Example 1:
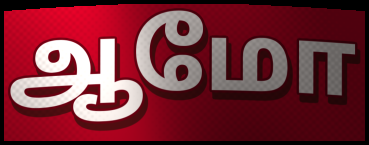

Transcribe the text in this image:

ஆமோ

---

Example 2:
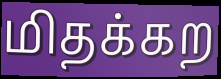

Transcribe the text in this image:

மிதக்கற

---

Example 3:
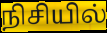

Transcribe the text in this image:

நிசியில்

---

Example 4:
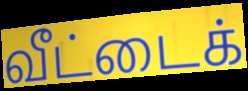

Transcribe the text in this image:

வீட்டைக்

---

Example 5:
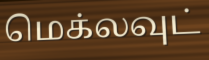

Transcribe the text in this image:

மெக்லவுட்